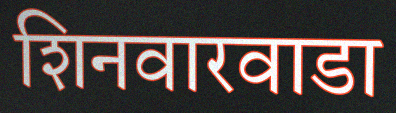
शिनवारवाडा